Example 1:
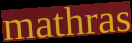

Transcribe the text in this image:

mathras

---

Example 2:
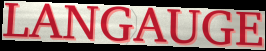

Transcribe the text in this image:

LANGAUGE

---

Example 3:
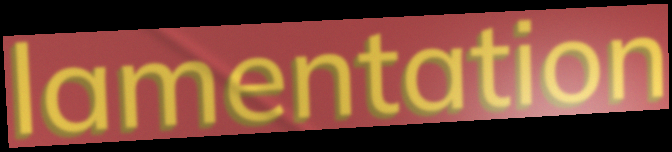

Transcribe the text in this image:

lamentation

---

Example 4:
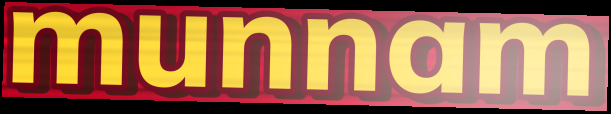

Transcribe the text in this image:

munnam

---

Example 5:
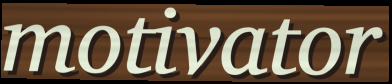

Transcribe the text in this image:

motivator